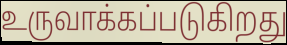
உருவாக்கப்படுகிறது